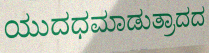
ಯುದಧಮಾಡುತ್ರಾದದ